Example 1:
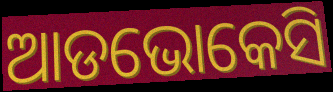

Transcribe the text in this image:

ଆଡଭୋକେସି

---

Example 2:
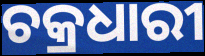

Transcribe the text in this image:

ଚକ୍ରଧାରୀ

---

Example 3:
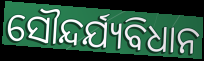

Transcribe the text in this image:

ସୌନ୍ଦର୍ଯ୍ୟବିଧାନ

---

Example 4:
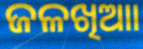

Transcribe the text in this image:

ଜଳଖିଆା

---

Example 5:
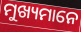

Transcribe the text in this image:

ମୁଖ୍ୟମାନେ